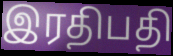
இரதிபதி